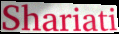
Shariati